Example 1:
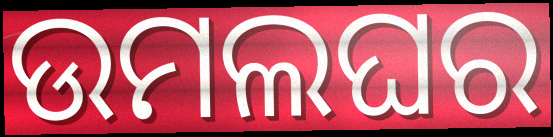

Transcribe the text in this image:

ଉମଲଘର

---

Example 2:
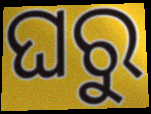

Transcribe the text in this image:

ଘରୁ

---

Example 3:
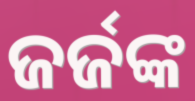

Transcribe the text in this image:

ଜର୍ଜଙ୍କ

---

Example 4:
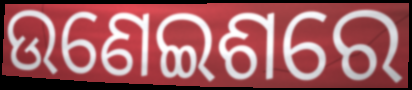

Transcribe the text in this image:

ଉଣେଇଶରେ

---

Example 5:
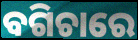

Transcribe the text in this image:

ବଗିଚାରେ